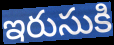
ఇరుసుకి